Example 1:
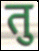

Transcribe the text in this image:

तु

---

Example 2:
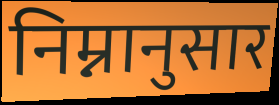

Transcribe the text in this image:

निम्नानुसार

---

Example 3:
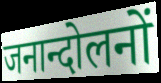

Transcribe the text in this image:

जनान्दोलनों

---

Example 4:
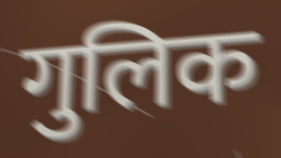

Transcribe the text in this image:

गुलिक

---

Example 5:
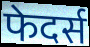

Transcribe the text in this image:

फेदर्स